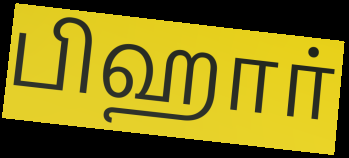
பிஹார்